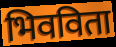
भिवविता